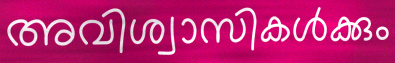
അവിശ്വാസികൾക്കും